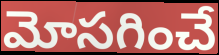
మోసగించే